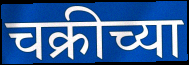
चक्रीच्या